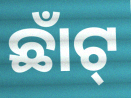
ଛାଁଟ୍